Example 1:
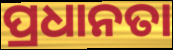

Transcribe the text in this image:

ପ୍ରଧାନତା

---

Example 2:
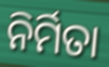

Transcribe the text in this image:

ନିର୍ମିତା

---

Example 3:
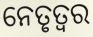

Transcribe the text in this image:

ନେତୃତ୍ୱର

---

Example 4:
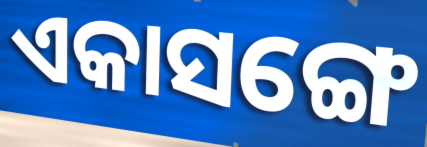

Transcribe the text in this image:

ଏକାସଙ୍ଗେ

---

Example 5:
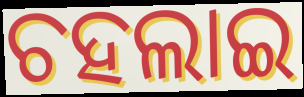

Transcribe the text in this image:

ଚହଲାଇ